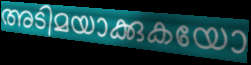
അടിമയാക്കുകയോ